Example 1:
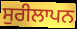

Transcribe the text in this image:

ਸੁਰੀਲਾਪਨ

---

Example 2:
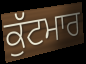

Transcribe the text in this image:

ਕੁੱਟਮਾਰ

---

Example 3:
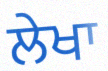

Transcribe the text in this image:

ਲੇਖਾ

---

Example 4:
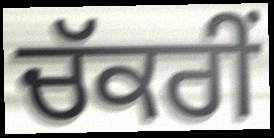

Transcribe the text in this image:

ਚੱਕਰੀਂ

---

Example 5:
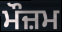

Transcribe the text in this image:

ਮੌਜ਼ਮ